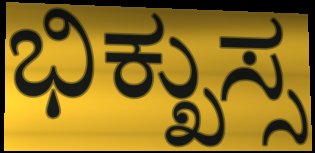
ಭಿಕ್ಖುಸ್ಸ